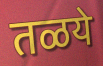
तळये